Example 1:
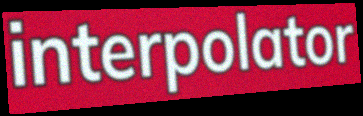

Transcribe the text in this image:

interpolator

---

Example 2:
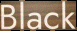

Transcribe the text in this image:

Black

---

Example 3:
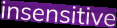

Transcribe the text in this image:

insensitive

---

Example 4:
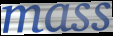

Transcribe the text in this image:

mass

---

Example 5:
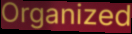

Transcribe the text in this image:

Organized